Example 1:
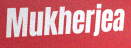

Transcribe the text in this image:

Mukherjea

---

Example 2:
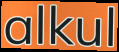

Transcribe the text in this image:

alkul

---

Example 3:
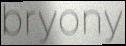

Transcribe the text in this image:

bryony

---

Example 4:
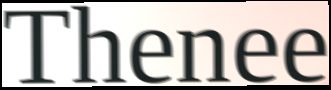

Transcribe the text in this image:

Thenee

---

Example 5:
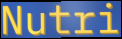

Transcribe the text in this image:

Nutri